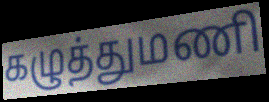
கழுத்துமணி